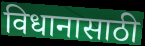
विधानासाठी